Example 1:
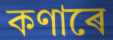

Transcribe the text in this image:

কণাৰে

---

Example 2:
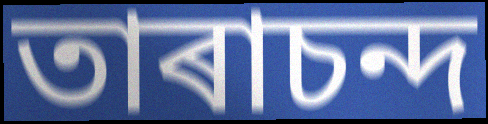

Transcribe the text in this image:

তাৰাচন্দ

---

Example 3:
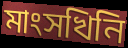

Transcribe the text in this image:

মাংসখিনি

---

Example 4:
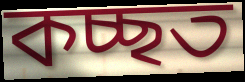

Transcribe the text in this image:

কচ্ছত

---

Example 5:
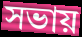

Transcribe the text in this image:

সভায়